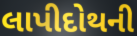
લાપીદોથની